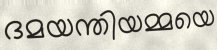
ദമയന്തിയമ്മയെ